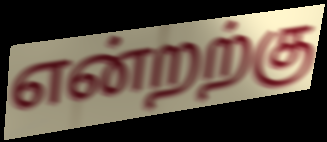
என்றற்கு